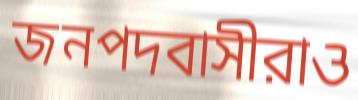
জনপদবাসীরাও